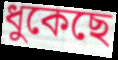
ধুকেছে